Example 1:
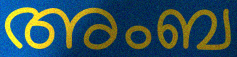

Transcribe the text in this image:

അംബ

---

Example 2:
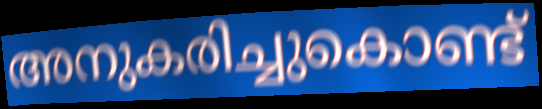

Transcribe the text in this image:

അനുകരിച്ചുകൊണ്ട്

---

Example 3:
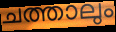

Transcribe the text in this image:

ചത്താലും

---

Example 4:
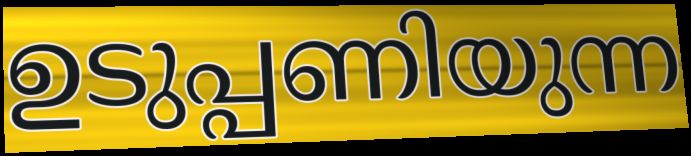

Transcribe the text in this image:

ഉടുപ്പണിയുന്ന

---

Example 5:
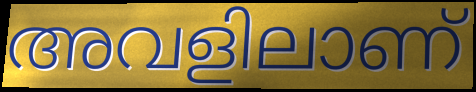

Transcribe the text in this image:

അവളിലാണ്